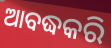
ଆବଦ୍ଧକରି